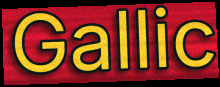
Gallic